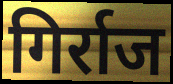
गिर्राज